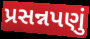
પ્રસન્નપણું